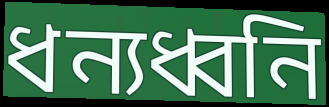
ধন্যধ্বনি